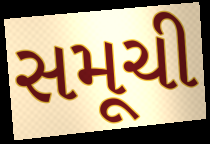
સમૂચી